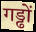
गड्ढों